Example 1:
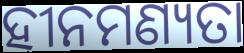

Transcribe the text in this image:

ହୀନମଣ୍ୟତା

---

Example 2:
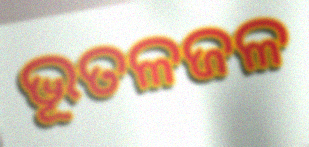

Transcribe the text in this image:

ଭୂତଳଜଳ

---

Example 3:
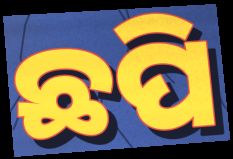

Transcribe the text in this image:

ଛପି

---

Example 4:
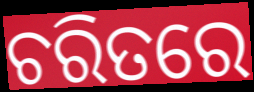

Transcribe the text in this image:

ଚରିତରେ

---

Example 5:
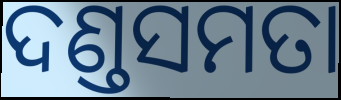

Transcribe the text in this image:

ଦଣ୍ଡସମତା